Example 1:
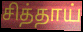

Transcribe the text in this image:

சித்தாய்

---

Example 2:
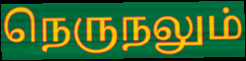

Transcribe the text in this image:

நெருநலும்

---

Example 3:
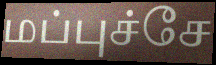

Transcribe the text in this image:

மப்புச்சே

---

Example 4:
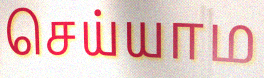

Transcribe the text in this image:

செய்யாம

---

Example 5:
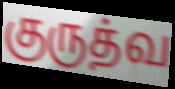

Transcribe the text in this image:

குருத்வ